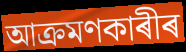
আক্ৰমণকাৰীৰ